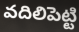
వదిలిపెట్టి